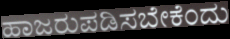
ಹಾಜರುಪಡಿಸಬೇಕೆಂದು